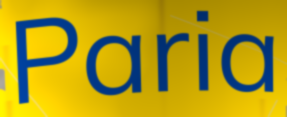
Paria